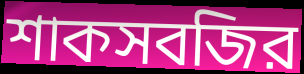
শাকসবজির